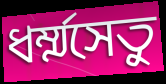
ধর্ম্মসেতু